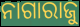
ନାଗାରାଜୁ